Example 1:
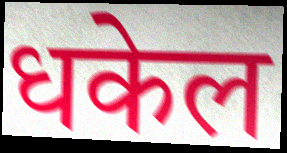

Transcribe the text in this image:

धकेल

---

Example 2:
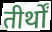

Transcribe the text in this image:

तीर्थों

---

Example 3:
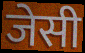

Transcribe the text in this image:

जेसी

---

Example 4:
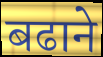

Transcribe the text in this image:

बढाने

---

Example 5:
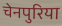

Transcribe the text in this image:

चेनपुरिया